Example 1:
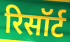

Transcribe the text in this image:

रिसॉर्ट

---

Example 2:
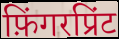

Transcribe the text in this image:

फ़िंगरप्रिंट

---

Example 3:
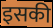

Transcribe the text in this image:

इसकी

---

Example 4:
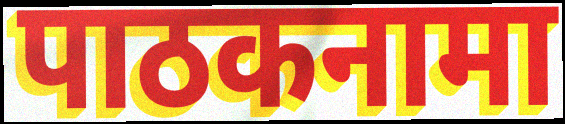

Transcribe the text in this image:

पाठकनामा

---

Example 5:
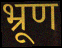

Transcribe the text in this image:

भ्रूण